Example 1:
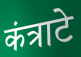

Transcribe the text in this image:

कंत्राटे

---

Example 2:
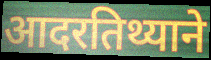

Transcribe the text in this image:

आदरतिथ्याने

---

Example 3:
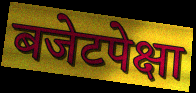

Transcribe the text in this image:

बजेटपेक्षा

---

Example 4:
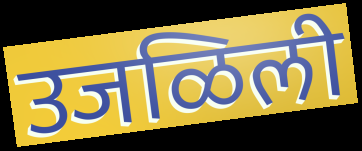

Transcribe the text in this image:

उजळिली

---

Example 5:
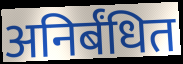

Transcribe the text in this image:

अनिर्बंधित